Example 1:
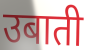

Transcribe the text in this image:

उबाती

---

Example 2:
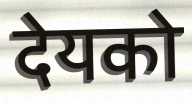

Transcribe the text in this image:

देयको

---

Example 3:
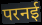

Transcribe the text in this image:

परनई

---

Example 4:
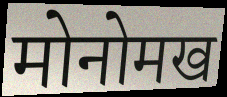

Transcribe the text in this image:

मोनोमख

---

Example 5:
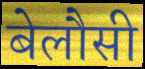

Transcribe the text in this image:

बेलौसी